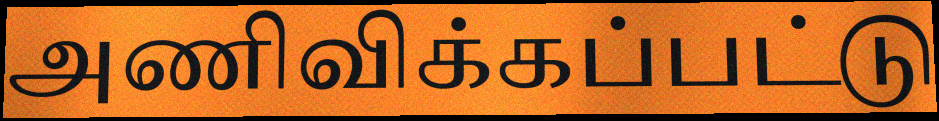
அணிவிக்கப்பட்டு